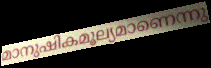
മാനുഷികമൂല്യമാണെന്നു